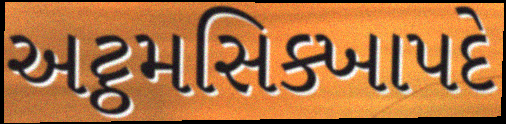
અટ્ઠમસિક્ખાપદે